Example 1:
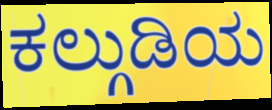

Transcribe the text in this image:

ಕಲ್ಗುಡಿಯ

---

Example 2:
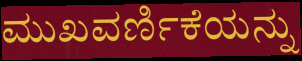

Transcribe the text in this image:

ಮುಖವರ್ಣಿಕೆಯನ್ನು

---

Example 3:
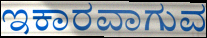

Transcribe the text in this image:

ಇಕಾರವಾಗುವ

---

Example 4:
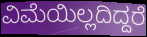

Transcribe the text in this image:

ವಿಮೆಯಿಲ್ಲದಿದ್ದರೆ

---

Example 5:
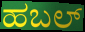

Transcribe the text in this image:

ಹಬಲ್